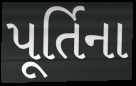
પૂર્તિના